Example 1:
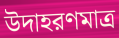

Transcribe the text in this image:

উদাহরণমাত্র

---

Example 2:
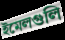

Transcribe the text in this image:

ইমেলগুলি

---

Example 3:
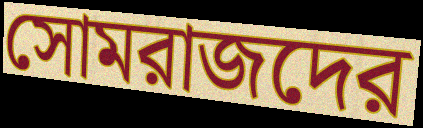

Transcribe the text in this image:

সোমরাজদের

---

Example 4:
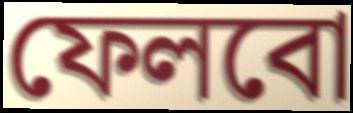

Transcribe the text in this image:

ফেলবো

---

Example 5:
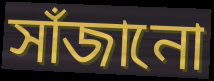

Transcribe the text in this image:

সাঁজানো